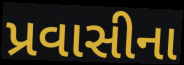
પ્રવાસીના